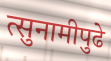
त्सुनामीपुढे